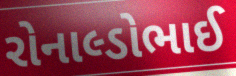
રોનાલ્ડોભાઈ